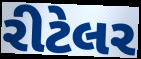
રીટેલર